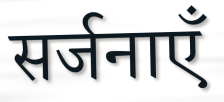
सर्जनाएँ